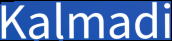
Kalmadi